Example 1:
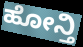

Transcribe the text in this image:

ಹೋನ್ತಿ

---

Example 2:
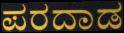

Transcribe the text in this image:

ಪರದಾಡ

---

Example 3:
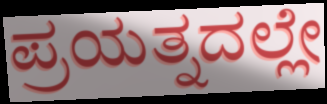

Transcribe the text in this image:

ಪ್ರಯತ್ನದಲ್ಲೇ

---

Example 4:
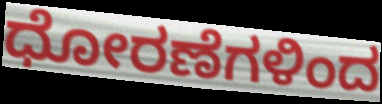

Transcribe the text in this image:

ಧೋರಣೆಗಳಿಂದ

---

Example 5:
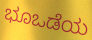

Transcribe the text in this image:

ಭೂಒಡೆಯ